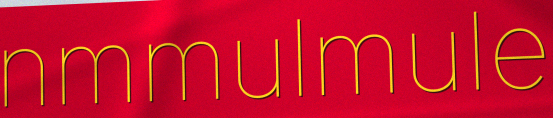
nmmulmule